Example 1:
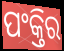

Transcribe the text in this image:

ପଂକ୍ତିର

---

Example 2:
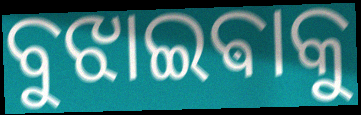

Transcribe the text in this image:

ବୁଝାଇଵାକୁ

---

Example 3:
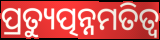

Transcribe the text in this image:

ପ୍ରତ୍ୟୁତ୍ପନ୍ନମତିତ୍ୱ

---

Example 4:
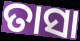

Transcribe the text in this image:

ତାସା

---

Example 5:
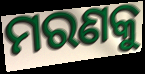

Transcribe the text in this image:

ମରଣକୁ